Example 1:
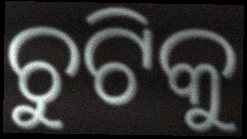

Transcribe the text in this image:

ଚୁଟିକୁ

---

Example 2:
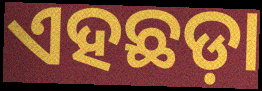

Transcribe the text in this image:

ଏହଛଡ଼ା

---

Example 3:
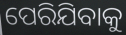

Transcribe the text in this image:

ପେରିଯିବାକୁ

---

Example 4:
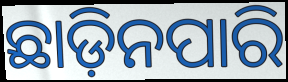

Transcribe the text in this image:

ଛାଡ଼ିନପାରି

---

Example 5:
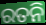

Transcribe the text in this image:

ରତନି